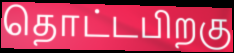
தொட்டபிறகு